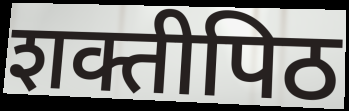
शक्तीपिठ